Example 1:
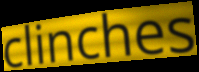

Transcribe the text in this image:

clinches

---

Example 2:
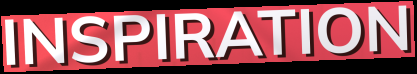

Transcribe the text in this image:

INSPIRATION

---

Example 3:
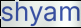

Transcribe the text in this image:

shyam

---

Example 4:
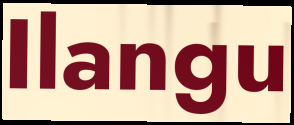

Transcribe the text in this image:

Ilangu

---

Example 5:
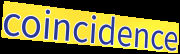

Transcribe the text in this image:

coincidence